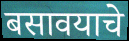
बसावयाचे